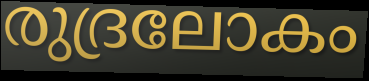
രുദ്രലോകം